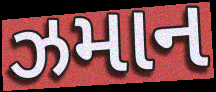
ઝમાન